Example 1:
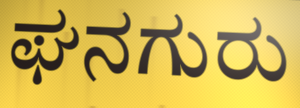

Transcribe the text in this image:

ಘನಗುರು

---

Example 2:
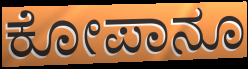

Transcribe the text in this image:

ಕೋಪಾನೂ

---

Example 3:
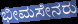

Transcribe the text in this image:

ಭೀಮಸೇನರು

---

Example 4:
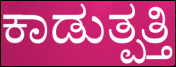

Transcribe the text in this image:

ಕಾಡುತ್ಪತ್ತಿ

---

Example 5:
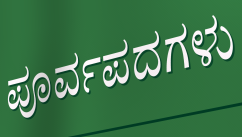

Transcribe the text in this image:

ಪೂರ್ವಪದಗಳು